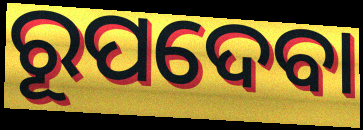
ରୂପଦେବା